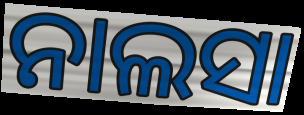
ନାଲସା